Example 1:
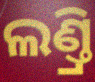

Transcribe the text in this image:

ଲଣ୍ତ୍ରି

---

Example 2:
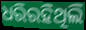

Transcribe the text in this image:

ଧରିରହିଥିଲି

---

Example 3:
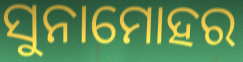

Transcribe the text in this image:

ସୁନାମୋହର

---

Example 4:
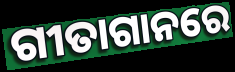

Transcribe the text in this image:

ଗୀତାଗାନରେ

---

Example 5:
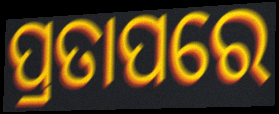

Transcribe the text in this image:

ପ୍ରତାପରେ